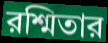
রশ্মিতার